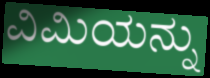
ವಿಮಿಯನ್ನು